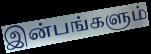
இன்பங்களும்